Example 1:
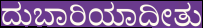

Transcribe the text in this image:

ದುಬಾರಿಯಾದೀತು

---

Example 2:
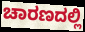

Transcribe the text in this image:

ಚಾರಣದಲ್ಲಿ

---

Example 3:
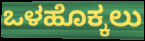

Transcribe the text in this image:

ಒಳಹೊಕ್ಕಲು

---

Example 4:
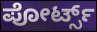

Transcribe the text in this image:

ಪೋರ್ಟ್ಸ್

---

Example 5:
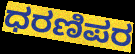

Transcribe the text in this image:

ಧರಣಿಪರ